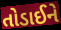
તોડાઈને